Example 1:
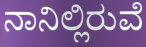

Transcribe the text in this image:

ನಾನಿಲ್ಲಿರುವೆ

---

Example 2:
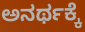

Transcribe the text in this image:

ಅನರ್ಥಕ್ಕೆ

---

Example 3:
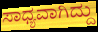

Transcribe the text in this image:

ಸಾಧ್ಯವಾಗಿದ್ದು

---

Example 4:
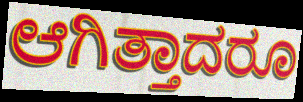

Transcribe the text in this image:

ಆಗಿತ್ತಾದರೂ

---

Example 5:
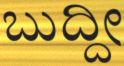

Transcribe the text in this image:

ಬುದ್ದೀ